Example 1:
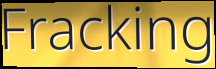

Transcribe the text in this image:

Fracking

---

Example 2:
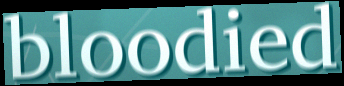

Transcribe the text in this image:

bloodied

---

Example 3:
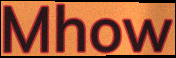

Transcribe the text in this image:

Mhow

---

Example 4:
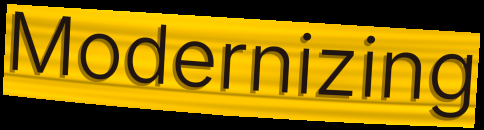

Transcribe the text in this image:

Modernizing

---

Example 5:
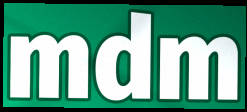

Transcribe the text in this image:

mdm